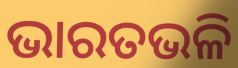
ଭାରତଭଳି